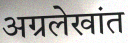
अग्रलेखांत